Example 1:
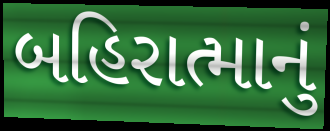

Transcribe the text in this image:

બહિરાત્માનું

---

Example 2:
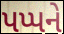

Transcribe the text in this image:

પપ્પને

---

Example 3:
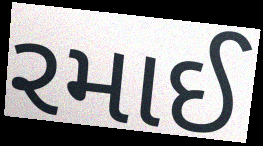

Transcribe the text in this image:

રમાઈ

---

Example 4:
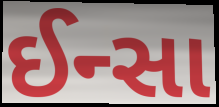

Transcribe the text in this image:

ઈન્સા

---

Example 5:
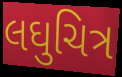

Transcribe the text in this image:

લઘુચિત્ર